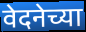
वेदनेच्या